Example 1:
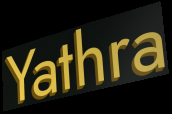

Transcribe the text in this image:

Yathra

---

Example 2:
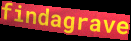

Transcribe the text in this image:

findagrave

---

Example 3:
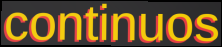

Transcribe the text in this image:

continuos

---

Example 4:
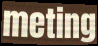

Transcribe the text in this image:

meting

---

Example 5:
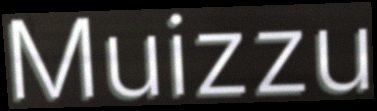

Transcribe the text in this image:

Muizzu